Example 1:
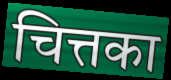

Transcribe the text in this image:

चित्तका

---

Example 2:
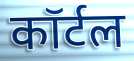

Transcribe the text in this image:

कॉर्टल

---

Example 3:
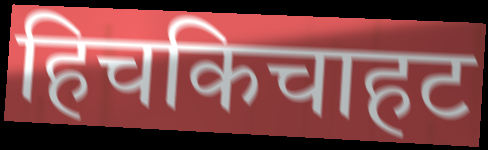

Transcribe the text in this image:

हिचकिचाहट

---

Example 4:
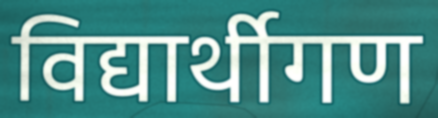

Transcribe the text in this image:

विद्यार्थीगण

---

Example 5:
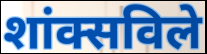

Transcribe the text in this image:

शांक्सविले